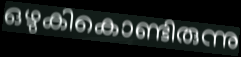
ഒഴുകികൊണ്ടിരുന്നു